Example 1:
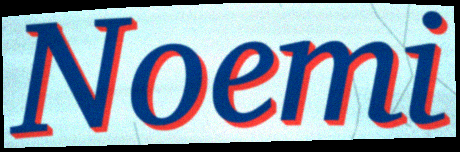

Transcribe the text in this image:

Noemi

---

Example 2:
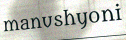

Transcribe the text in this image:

manushyoni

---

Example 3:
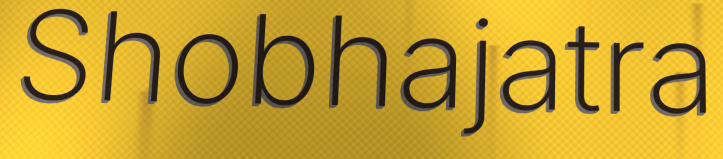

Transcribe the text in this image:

Shobhajatra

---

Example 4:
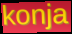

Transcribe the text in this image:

konja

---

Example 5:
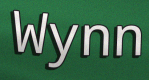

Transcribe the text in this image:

Wynn